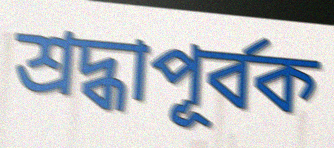
শ্রদ্ধাপূর্বক